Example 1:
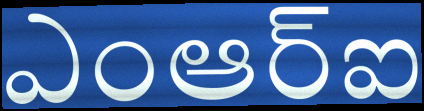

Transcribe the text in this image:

ఎంఆర్ఐ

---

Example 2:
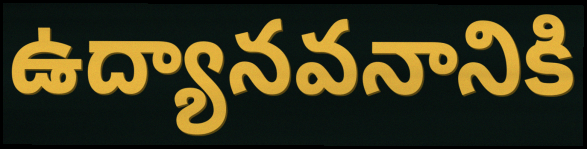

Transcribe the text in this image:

ఉద్యానవనానికి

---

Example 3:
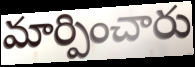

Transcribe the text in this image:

మార్పించారు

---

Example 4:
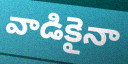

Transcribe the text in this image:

వాడికైనా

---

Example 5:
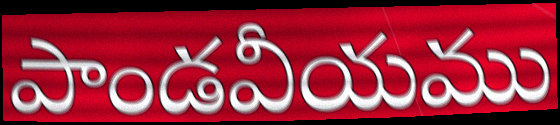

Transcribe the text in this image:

పాండవీయము